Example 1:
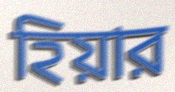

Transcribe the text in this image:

হিয়ার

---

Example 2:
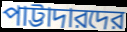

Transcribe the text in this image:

পাট্টাদারদের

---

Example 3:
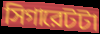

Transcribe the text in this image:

সিগারেটটা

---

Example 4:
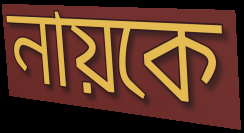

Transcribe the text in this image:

নায়কে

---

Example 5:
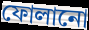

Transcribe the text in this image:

ফোলানো